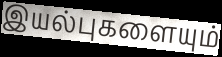
இயல்புகளையும்